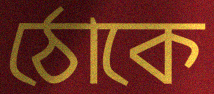
ঠোকে